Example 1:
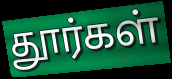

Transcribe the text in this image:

தூர்கள்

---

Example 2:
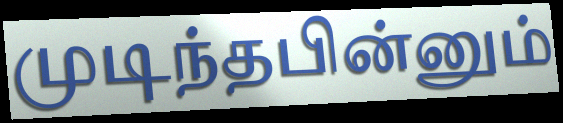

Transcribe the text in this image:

முடிந்தபின்னும்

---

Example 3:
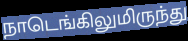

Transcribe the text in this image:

நாடெங்கிலுமிருந்து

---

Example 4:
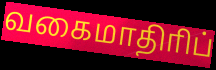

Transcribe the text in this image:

வகைமாதிரிப்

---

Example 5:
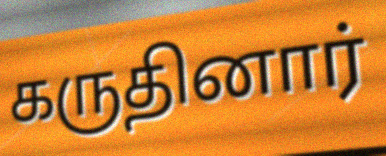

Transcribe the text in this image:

கருதினார்